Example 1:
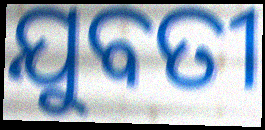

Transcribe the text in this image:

ଯୁବତୀ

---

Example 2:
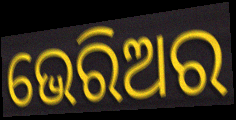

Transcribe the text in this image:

ଭେରିଅର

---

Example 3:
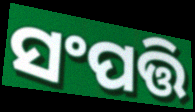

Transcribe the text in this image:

ସଂପତ୍ତି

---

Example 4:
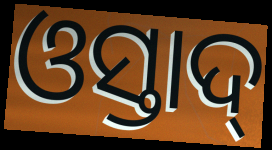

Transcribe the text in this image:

ଓସ୍ତାଦ୍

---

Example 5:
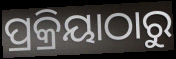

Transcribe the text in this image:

ପ୍ରକ୍ରିୟାଠାରୁ